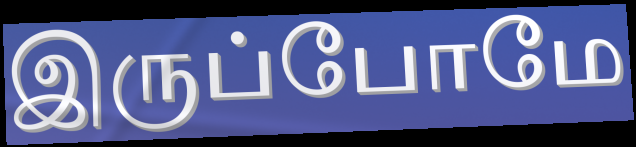
இருப்போமே